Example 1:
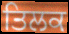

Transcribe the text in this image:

ਤਿਲਕ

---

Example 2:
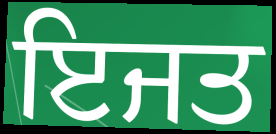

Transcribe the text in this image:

ਇਜਤ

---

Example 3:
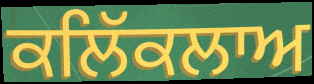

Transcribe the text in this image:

ਕਲਿੱਕਲਾਅ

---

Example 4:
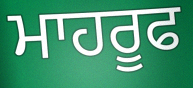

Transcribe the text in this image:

ਮਾਹਰੂਫ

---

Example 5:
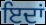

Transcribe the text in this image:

ਇਦਾਂ